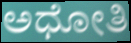
ಅಧೋತಿ